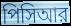
পিসিআর